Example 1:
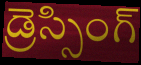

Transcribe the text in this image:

డ్రెస్సింగ్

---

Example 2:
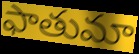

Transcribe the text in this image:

ఫాతుమా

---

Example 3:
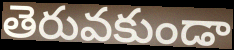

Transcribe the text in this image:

తెరువకుండా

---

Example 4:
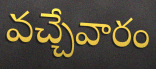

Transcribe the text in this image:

వచ్చేవారం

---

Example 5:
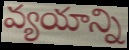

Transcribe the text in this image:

వ్యయాన్ని